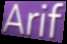
Arif